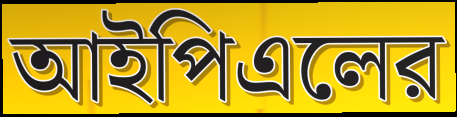
আইপিএলের